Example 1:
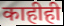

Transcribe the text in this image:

काहीही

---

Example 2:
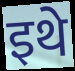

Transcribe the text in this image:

इथे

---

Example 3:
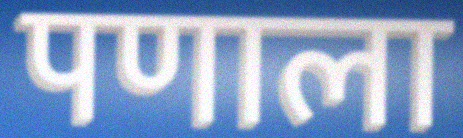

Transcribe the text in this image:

पणाला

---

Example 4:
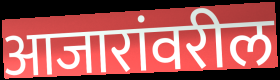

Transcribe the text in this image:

आजारांवरील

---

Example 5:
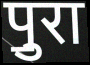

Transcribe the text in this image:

पु॒रा